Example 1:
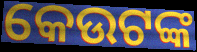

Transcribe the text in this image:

କେଉଟଙ୍କ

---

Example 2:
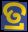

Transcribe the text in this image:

ତ୍ର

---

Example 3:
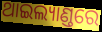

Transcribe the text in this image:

ଥାଇଲ୍ୟାଣ୍ଡରେ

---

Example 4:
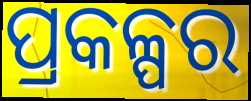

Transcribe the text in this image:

ପ୍ରକଳ୍ପର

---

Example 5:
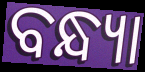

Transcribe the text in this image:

ବନ୍ଧ୍ଯା